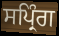
ਸਪ੍ਰਿੰਗ